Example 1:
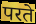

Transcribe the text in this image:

परते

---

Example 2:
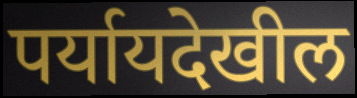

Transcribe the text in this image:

पर्यायदेखील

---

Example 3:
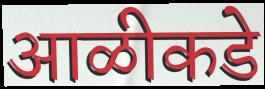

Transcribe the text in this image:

आळीकडे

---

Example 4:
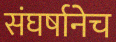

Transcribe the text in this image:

संघर्षानेच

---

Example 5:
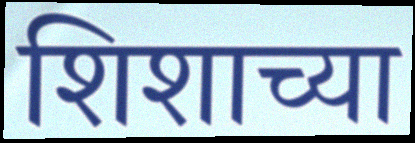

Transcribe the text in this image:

शिशाच्या